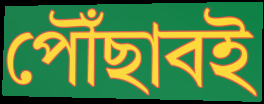
পৌঁছাবই